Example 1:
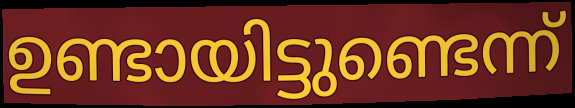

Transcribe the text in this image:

ഉണ്ടായിട്ടുണ്ടെന്ന്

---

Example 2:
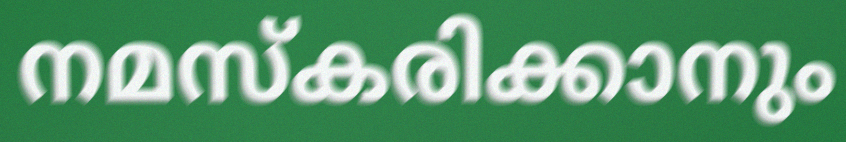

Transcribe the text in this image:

നമസ്കരിക്കാനും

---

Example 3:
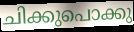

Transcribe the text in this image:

ചിക്കുപൊക്കു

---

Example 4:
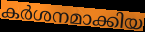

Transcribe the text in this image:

കർശനമാക്കിയ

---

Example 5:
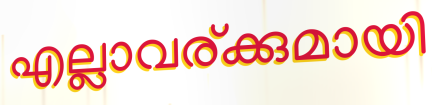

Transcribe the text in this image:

എല്ലാവര്ക്കുമായി